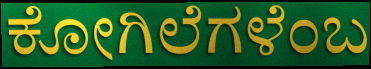
ಕೋಗಿಲೆಗಳೆಂಬ